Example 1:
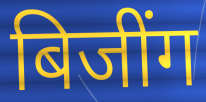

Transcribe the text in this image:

बिजींग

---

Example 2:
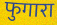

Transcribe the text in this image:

फुगारा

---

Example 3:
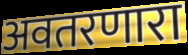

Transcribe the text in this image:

अवतरणारा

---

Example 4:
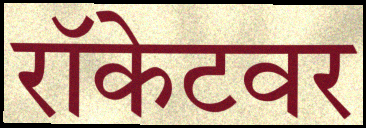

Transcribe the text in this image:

रॉकेटवर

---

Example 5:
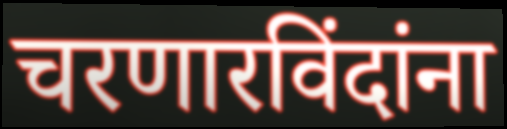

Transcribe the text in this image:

चरणारविंदांना